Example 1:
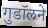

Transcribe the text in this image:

गुडॉलने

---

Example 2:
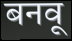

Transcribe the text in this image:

बनवू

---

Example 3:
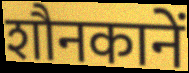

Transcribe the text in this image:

शौनकानें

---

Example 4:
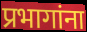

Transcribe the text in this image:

प्रभागांना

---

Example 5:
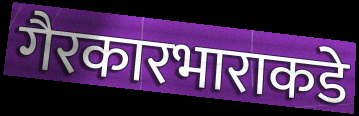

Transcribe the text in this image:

गैरकारभाराकडे